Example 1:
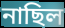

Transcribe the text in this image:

নাছিল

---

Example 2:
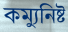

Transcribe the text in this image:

কম্যুনিষ্ট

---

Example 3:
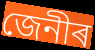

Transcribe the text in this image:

জেনীৰ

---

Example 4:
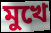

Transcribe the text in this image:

মুখে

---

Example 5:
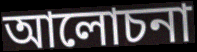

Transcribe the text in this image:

আলোচনা